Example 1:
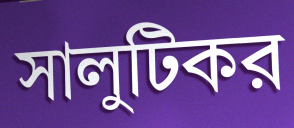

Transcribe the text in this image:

সালুটিকর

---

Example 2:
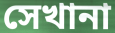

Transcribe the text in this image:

সেখানা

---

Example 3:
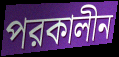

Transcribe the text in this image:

পরকালীন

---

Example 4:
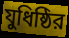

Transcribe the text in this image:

যুধিষ্ঠির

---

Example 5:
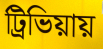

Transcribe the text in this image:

ট্রিভিয়ায়